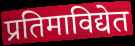
प्रतिमाविद्येत